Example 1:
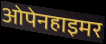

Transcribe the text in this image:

ओपेनहाइमर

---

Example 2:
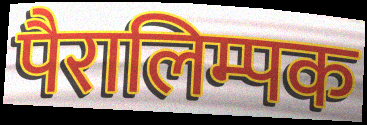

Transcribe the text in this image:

पैरालिम्पक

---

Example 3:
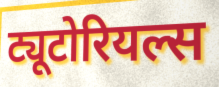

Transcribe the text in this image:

ट्यूटोरियल्स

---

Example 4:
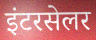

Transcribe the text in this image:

इंटरसेलर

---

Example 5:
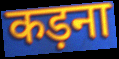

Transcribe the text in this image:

कड़ना